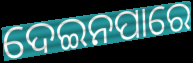
ଦେଇନପାରେ